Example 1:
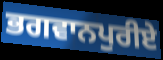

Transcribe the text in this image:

ਭਗਵਾਨਪੁਰੀਏ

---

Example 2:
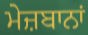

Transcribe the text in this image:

ਮੇਜ਼ਬਾਨਾਂ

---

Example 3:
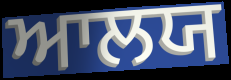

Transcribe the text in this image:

ਆਲਯ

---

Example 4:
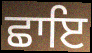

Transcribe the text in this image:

ਛਾਇ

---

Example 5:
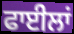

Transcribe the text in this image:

ਫਾਈਲਾਂ